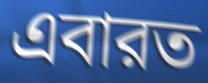
এবারত